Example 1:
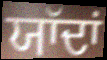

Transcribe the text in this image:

ਯਾੱਦਾਂ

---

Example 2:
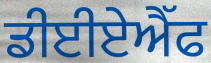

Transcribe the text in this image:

ਡੀਈਏਐੱਫ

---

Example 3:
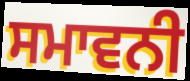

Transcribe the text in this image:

ਸਮਾਵਨੀ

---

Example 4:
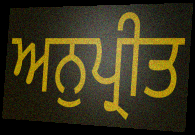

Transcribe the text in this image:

ਅਨੁਪ੍ਰੀਤ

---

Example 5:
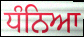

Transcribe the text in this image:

ਧੰਨਿਆ